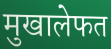
मुखालेफत